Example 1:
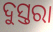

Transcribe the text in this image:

ଦୁସ୍ତରା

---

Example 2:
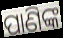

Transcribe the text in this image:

ପାଣିଙ୍କ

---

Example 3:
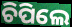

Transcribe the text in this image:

ଚିପିଲେ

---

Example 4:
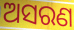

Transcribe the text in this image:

ଅସରଣ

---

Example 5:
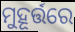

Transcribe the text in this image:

ମୁହୂର୍ତ୍ତରେ